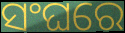
ସଂଘରେ